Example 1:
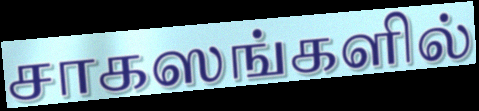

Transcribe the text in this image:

சாகஸங்களில்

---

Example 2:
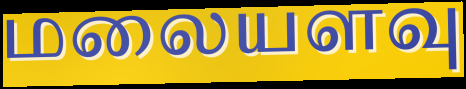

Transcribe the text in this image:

மலையளவு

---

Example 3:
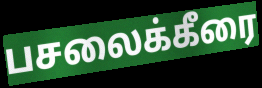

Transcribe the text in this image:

பசலைக்கீரை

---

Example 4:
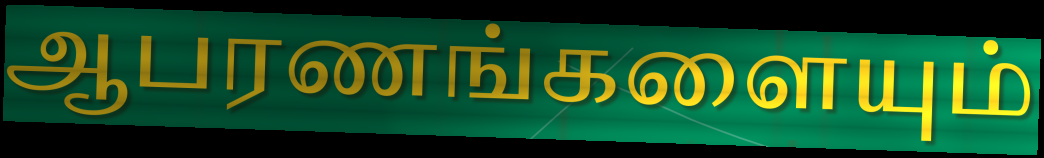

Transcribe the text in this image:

ஆபரணங்களையும்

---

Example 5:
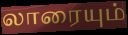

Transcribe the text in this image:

லாரையும்